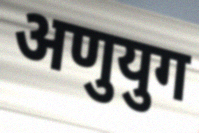
अणुयुग